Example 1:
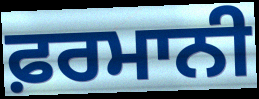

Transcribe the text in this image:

ਫ਼ਰਮਾਨੀ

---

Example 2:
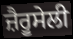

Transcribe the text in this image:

ਜ਼ੈਰੂਸੇਲੀ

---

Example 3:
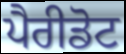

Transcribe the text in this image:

ਪੈਰੀਡੋਟ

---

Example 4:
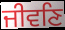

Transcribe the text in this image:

ਜੀਵਣਿ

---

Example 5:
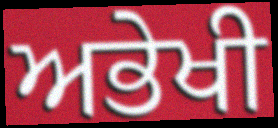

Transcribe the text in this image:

ਅਭੇਖੀ